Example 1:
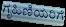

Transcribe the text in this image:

ಗೃಹಿಣಿಯರಿಗೆ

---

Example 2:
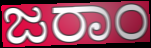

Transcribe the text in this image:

ಜರಾಂ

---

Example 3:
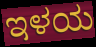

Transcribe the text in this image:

ಇಳಯ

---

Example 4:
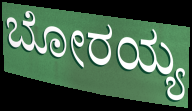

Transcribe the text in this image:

ಬೋರಯ್ಯ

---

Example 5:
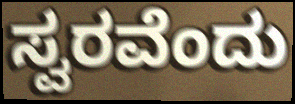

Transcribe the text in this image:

ಸ್ವರವೆಂದು